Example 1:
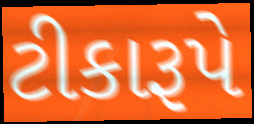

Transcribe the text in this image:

ટીકારૂપે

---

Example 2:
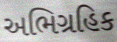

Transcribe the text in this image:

અભિગ્રહિક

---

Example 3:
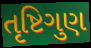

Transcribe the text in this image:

તૃષ્ટિગુણ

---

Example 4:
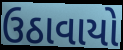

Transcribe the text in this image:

ઉઠાવાયો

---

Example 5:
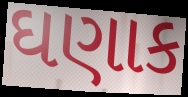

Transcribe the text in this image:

ઘણાક